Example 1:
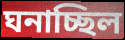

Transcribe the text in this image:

ঘনাচ্ছিল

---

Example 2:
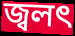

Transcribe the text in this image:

জ্বলৎ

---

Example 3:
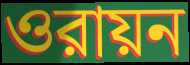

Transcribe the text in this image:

ওরায়ন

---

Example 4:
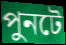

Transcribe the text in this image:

পুনটে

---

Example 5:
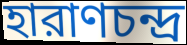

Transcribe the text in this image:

হারাণচন্দ্র